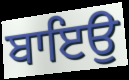
ਬਾਇਉ